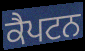
ਕੈਪਟਨ